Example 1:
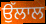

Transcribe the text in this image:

ਉੱਲਾਲ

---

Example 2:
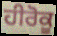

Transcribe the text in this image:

ਹੀਰੋਕੂ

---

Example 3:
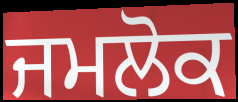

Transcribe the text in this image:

ਜਮਲੋਕ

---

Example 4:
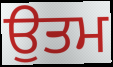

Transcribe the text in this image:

ਉਤਮ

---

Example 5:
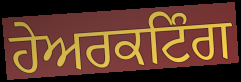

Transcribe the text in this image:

ਹੇਅਰਕਟਿੰਗ